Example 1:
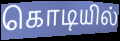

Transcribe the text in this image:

கொடியில்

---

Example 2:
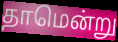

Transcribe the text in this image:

தாமென்று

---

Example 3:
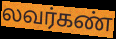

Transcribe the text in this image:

லவர்கண்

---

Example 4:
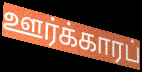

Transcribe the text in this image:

ஊர்க்காரப்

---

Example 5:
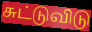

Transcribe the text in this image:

சுட்டுவிடு